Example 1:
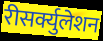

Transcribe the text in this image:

रीसर्क्युलेशन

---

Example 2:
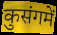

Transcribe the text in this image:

कुसंगमें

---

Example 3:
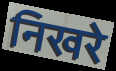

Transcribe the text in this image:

निखरे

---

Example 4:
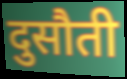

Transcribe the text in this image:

दुसौती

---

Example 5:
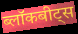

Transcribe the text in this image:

ब्लॉकबीट्स